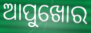
ଆପୁଖୋର